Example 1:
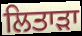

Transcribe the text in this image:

ਲਿਤਾੜਾ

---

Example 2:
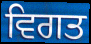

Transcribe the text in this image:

ਵਿਗਤ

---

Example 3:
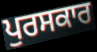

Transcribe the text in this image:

ਪੁਰਸਕਾਰ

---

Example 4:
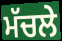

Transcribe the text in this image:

ਮੱਚਲੇ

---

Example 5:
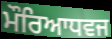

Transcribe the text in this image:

ਮੌਰਿਆਧਵਜ